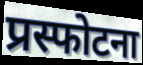
प्रस्फोटना